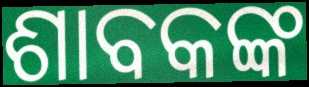
ଶାବକଙ୍କ